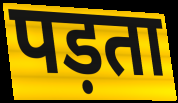
पड़ता